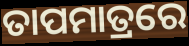
ତାପମାତ୍ରରେ